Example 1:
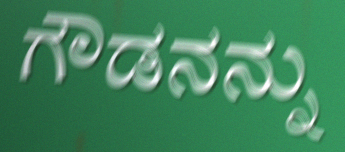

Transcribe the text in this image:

ಗೌಡನನ್ನು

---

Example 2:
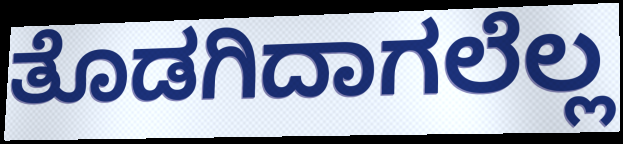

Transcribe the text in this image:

ತೊಡಗಿದಾಗಲೆಲ್ಲ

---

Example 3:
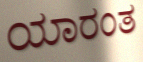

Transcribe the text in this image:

ಯಾರಂತ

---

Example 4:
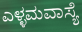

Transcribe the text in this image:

ಎಳ್ಳಮವಾಸ್ಯೆ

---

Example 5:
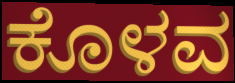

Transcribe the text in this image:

ಕೊಳವ